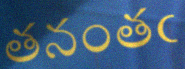
తనంతఁ